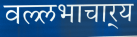
वल्लभाचार्य